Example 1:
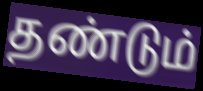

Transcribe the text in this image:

தண்டும்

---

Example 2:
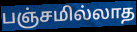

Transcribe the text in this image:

பஞ்சமில்லாத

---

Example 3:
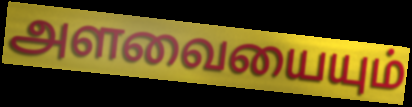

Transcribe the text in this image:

அளவையையும்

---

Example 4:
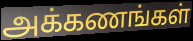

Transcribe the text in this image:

அக்கணங்கள்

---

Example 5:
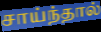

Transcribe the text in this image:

சாய்ந்தால்